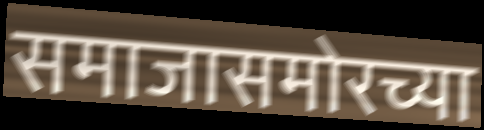
समाजासमोरच्या